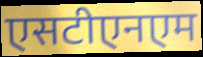
एसटीएनएम